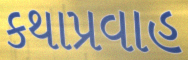
કથાપ્રવાહ